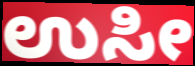
ಉಸೀ